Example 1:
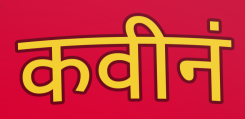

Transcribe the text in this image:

कवीनं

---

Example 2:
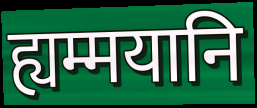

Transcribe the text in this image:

ह्यम्मयानि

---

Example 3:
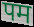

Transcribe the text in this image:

पम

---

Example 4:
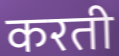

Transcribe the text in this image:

करती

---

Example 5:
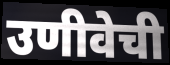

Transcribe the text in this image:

उणीवेची